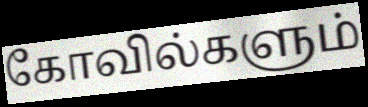
கோவில்களும்